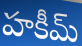
హకీమ్